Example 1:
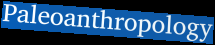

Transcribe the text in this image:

Paleoanthropology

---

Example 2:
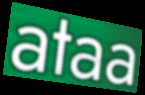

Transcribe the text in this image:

ataa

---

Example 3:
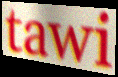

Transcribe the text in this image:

tawi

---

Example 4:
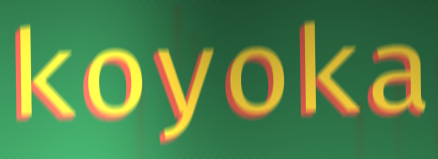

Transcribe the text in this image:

koyoka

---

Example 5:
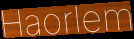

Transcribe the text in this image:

Haorlem